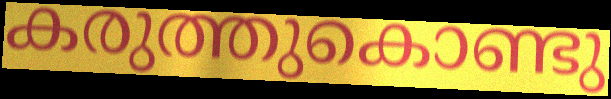
കരുത്തുകൊണ്ടു